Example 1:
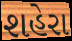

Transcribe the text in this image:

શહેરા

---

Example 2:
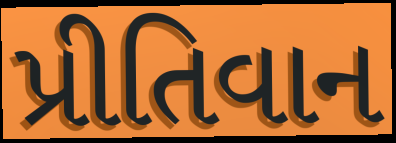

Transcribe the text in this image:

પ્રીતિવાન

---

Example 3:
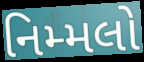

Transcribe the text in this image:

નિમ્મલો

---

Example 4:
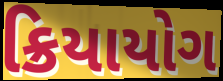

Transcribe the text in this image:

ક્રિયાયોગ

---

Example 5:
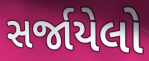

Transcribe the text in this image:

સર્જાયેલો